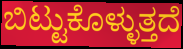
ಬಿಟ್ಟುಕೊಳ್ಳುತ್ತದೆ